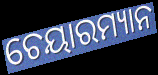
ଚେୟାରମ୍ୟାନ